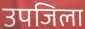
उपजिला